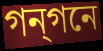
গন্গনে